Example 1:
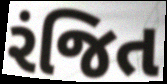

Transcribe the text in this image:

રંજિત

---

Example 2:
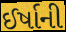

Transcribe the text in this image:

ઈર્ષાની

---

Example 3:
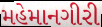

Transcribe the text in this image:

મહેમાનગીરી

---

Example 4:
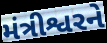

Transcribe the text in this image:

મંત્રીશ્વરને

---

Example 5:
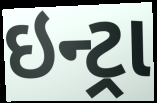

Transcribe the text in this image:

ઇન્ટ્રા